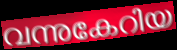
വന്നുകേറിയ